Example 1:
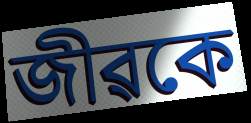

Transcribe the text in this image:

জীৱকে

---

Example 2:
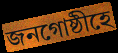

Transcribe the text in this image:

জনগোষ্ঠীহে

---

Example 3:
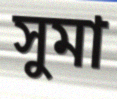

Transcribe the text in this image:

সুমা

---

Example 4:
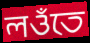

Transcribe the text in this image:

লওঁতে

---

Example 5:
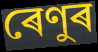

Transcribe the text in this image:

ৰেণুৰ